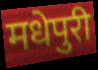
मधेपुरी